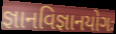
જ્ઞાનવિજ્ઞાનયોગઃ